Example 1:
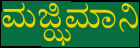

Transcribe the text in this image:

ಮಜ್ಝಿಮಾನಿ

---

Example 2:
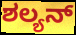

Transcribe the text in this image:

ಶಲ್ಯನ್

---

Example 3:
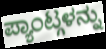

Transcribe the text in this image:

ಪ್ಯಾಂಟ್ಗಳನ್ನು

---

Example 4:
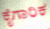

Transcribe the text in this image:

ಕೈಗಾರಿಕ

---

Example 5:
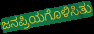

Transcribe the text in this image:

ಜನಪ್ರಿಯಗೊಳಿಸಿತು